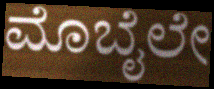
ಮೊಬೈಲೇ